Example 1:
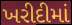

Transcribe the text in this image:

ખરીદીમાં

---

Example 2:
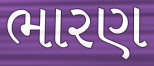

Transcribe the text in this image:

ભારણ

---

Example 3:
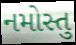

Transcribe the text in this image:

નમોસ્તુ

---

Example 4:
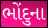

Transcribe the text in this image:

ભોંદુના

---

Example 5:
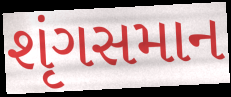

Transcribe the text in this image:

શૃંગસમાન